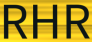
RHR